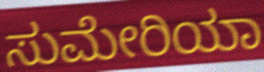
ಸುಮೇರಿಯಾ